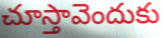
చూస్తావెందుకు